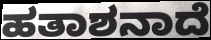
ಹತಾಶನಾದೆ